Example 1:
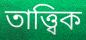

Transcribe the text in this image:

তাত্ত্বিক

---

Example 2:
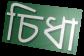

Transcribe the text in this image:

চিধা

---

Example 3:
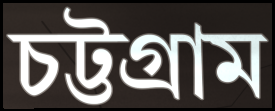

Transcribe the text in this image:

চট্টগ্ৰাম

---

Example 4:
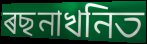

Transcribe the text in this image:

ৰছনাখনিত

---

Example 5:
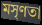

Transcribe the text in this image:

মসৃণতা